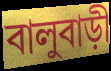
বালুবাড়ী